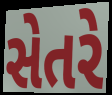
સેતરે